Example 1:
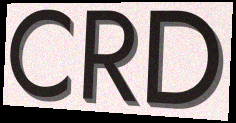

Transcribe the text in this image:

CRD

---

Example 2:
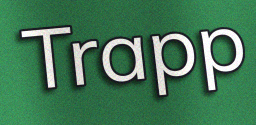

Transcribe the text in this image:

Trapp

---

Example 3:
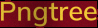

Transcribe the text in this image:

Pngtree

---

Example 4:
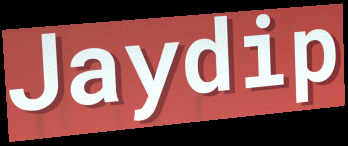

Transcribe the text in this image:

Jaydip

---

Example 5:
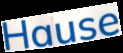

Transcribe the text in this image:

Hause